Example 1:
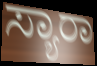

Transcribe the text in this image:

ಸ್ಯಾರಾ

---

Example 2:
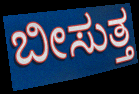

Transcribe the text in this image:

ಬೀಸುತ್ತ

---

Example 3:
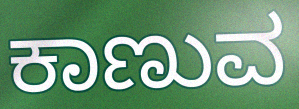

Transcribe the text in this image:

ಕಾಣುವ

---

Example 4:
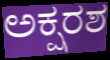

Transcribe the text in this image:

ಅಕ್ಷರಶ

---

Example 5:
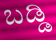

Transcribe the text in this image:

ಬಡ್ಡಿ